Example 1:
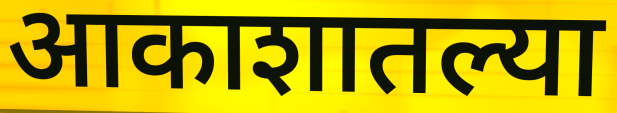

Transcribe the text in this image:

आकाशातल्या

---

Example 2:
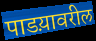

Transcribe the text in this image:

पाडय़ावरील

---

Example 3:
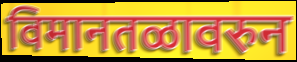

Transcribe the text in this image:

विमानतळावरुन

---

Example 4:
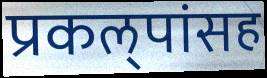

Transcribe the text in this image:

प्रकल्पांसह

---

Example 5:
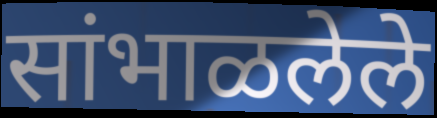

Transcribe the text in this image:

सांभाळलेले